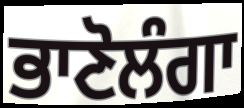
ਭਾਣੋਲੰਗਾ